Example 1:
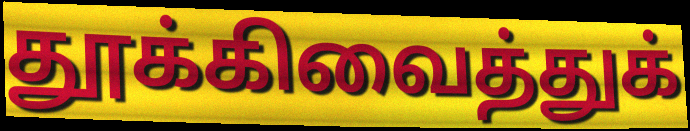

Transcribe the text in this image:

தூக்கிவைத்துக்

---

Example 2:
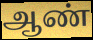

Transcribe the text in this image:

ஆண்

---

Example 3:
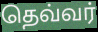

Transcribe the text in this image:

தெவ்வர்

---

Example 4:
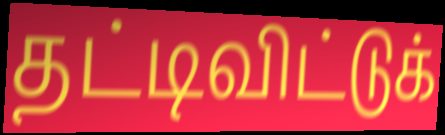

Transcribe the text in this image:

தட்டிவிட்டுக்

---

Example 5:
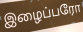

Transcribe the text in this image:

இழைப்பரோ